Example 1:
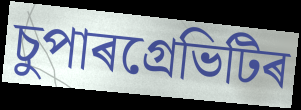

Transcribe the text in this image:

চুপাৰগ্ৰেভিটিৰ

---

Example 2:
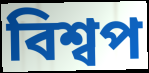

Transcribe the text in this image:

বিশ্বপ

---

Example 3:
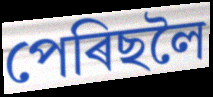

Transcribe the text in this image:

পেৰিছলৈ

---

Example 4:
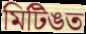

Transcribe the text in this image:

মিটিঙত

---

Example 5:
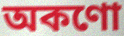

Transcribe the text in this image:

অকণো